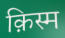
क़िस्म